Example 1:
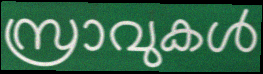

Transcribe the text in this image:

സ്രാവുകൾ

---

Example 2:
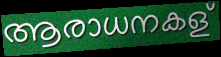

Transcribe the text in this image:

ആരാധനകള്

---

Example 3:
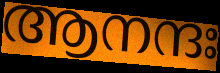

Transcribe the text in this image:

ആനന്ദഃ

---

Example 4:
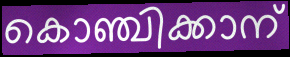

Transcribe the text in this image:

കൊഞ്ചിക്കാന്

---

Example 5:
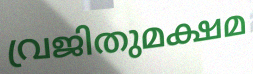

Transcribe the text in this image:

വ്രജിതുമക്ഷമ